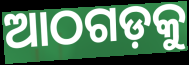
ଆଠଗଡ଼କୁ